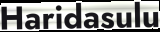
Haridasulu